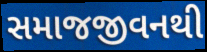
સમાજજીવનથી